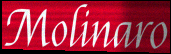
Molinaro